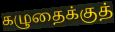
கழுதைக்குத்